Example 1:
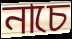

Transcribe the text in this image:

নাচে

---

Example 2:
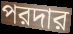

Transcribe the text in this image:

পরদার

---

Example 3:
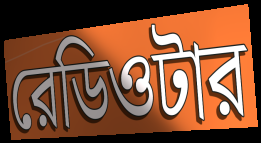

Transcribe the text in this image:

রেডিওটার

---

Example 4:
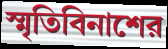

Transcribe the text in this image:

স্মৃতিবিনাশের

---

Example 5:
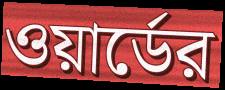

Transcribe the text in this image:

ওয়ার্ডের